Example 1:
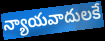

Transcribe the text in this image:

న్యాయవాదులకే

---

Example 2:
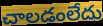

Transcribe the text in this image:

చాలడంలేదు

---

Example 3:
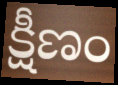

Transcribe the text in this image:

క్షీణం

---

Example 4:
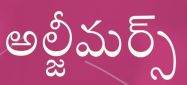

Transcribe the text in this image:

అల్జీమర్స్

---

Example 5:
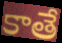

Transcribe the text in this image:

కాతే